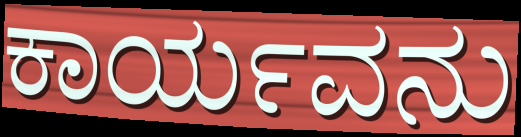
ಕಾರ್ಯವನು